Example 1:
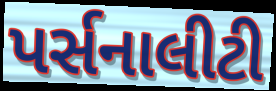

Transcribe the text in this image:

પર્સનાલીટી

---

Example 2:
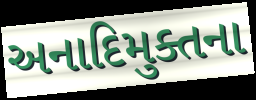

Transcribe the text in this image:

અનાદિમુક્તના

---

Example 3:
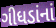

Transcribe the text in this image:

ગીધડાંનાં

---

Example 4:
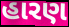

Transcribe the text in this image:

હારણ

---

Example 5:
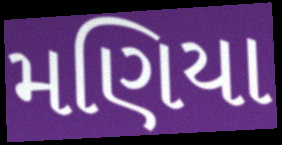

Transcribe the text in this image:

મણિયા